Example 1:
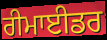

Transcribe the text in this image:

ਰੀਮਾਈਡਰ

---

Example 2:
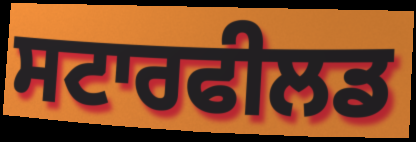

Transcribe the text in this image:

ਸਟਾਰਫੀਲਡ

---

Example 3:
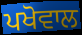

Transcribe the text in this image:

ਪਖੋਵਾਲ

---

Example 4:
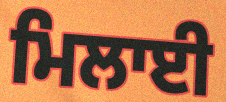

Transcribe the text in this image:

ਮਿਲਾਈ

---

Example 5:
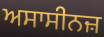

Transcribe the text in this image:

ਅਸਾਸੀਨਜ਼